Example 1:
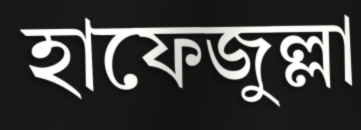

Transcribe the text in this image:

হাফেজুল্লা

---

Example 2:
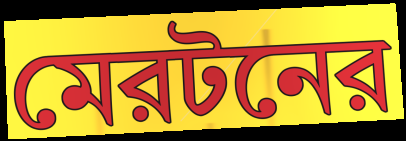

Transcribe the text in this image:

মেরটনের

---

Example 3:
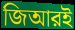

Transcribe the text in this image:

জিআরই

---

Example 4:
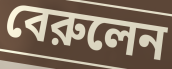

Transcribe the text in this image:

বেরুলেন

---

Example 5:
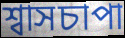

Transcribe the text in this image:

শ্বাসচাপা